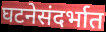
घटनेसंदर्भात